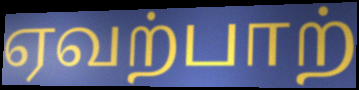
ஏவற்பாற்